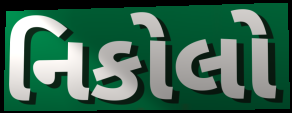
નિકોલો